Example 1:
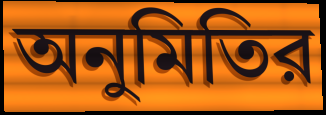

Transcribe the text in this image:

অনুমিতির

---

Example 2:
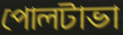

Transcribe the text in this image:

পোলটাভা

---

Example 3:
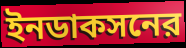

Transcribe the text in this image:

ইনডাকসনের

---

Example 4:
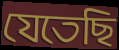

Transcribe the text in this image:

যেতেছি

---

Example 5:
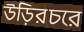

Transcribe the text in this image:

উড়িরচরে